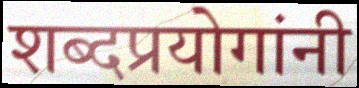
शब्दप्रयोगांनी